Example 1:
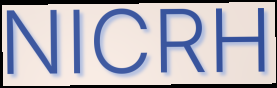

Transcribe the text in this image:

NICRH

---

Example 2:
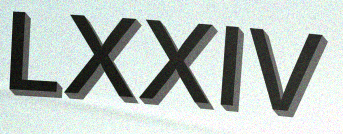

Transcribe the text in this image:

LXXIV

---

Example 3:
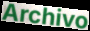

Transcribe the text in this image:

Archivo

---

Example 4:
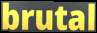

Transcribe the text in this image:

brutal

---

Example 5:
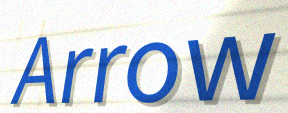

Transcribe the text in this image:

Arrow